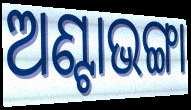
ଅଣ୍ଟାଭଙ୍ଗା